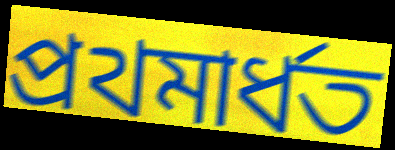
প্ৰথমাৰ্ধত